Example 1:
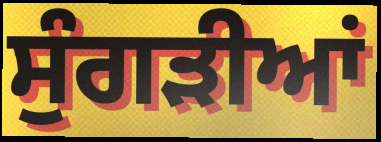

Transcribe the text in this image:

ਸੁੰਗੜੀਆਂ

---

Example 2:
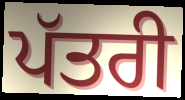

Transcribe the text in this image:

ਪੱਤਰੀ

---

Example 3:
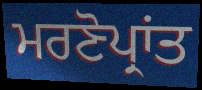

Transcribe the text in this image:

ਮਰਣੋਪ੍ਰਾਂਤ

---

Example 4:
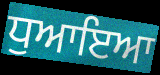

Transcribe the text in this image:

ਧੁਆਇਆ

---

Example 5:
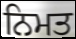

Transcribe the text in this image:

ਨਿਮਤ